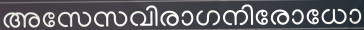
അസേസവിരാഗനിരോധോ